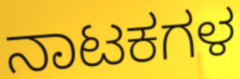
ನಾಟಕಗಳ